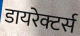
डायरेक्टर्स